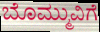
ಬೊಮ್ಮುವಿಗೆ